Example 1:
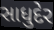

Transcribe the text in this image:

સાધુદેર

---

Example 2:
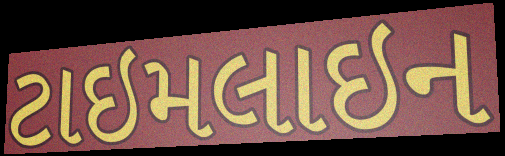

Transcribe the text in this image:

ટાઇમલાઇન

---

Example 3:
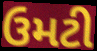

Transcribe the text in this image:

ઉમટી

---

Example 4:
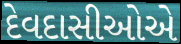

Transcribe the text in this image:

દેવદાસીઓએ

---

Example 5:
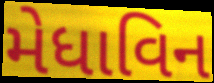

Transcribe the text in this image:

મેધાવિન